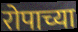
रोपाच्या